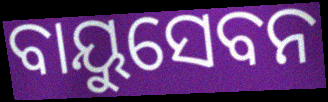
ବାୟୁସେବନ